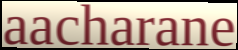
aacharane